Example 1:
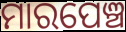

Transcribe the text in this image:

ମାରପେଞ୍ଚ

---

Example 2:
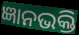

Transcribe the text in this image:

ଜ୍ଞାନଭକ୍ତି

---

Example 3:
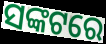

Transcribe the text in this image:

ସଙ୍କଟରେ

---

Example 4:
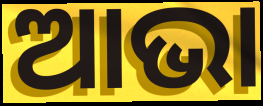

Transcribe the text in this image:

ଆଭା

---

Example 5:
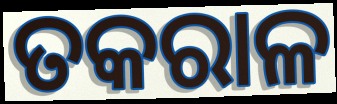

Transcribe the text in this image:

ତକରାଳ